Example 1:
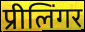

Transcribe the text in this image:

प्रीलिंगर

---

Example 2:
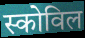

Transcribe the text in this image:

स्कोविल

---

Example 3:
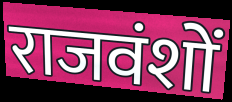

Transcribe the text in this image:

राजवंशों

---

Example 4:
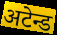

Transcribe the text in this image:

अटेन्ड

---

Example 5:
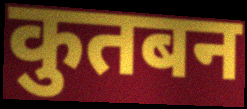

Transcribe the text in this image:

कुतबन